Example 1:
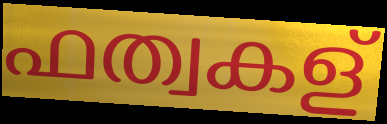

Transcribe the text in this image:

ഫത്വകള്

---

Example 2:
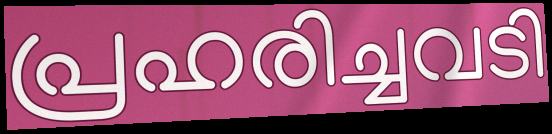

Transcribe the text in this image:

പ്രഹരിച്ചവടി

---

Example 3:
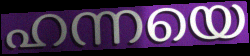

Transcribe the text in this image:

ഹന്നയെ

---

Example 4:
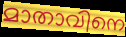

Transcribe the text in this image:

മാതാവിനെ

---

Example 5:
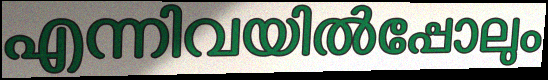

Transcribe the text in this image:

എന്നിവയിൽപ്പോലും